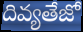
దివ్యతేజో